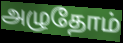
அழுதோம்